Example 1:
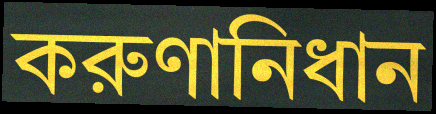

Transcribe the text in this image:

করুণানিধান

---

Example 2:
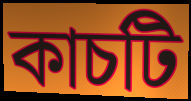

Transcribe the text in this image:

কাচটি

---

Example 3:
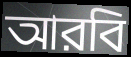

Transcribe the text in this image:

আরবি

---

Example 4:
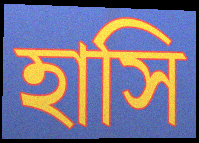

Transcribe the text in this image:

হাসি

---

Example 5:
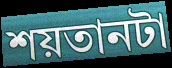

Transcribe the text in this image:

শয়তানটা